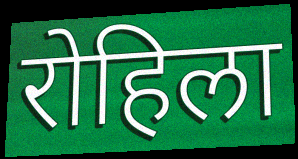
रोहिला